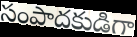
సంపాదకుడిగా